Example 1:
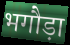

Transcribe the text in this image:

भगौड़ा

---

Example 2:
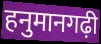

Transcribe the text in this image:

हनुमानगढ़ी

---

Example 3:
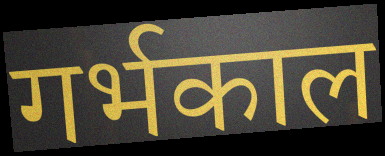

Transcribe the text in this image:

गर्भकाल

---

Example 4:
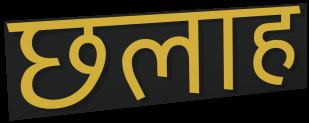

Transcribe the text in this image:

छलाह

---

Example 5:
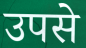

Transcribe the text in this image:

उपसे